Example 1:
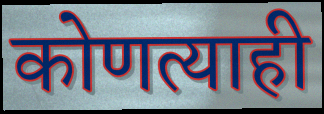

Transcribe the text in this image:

कोणत्याही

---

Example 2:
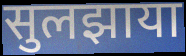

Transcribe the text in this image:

सुलझाया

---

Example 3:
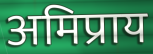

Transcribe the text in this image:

अमिप्राय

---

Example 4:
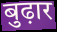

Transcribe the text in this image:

बुढ़ार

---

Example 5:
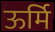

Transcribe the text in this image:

ऊर्मि